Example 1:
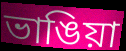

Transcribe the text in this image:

ভাঙিয়া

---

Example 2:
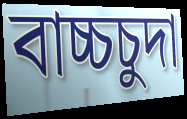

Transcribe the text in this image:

বাচ্চচুদা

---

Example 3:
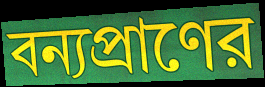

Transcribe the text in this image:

বন্যপ্রাণের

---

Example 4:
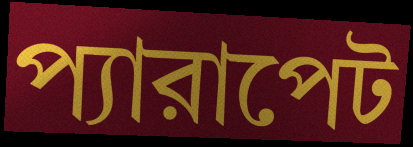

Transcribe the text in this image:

প্যারাপেট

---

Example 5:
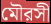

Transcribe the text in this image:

মৌরসী